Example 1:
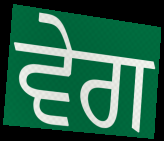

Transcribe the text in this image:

ਵੇਗ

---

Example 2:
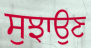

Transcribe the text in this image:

ਸੁਝਾਉਣ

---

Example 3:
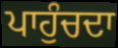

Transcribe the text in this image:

ਪਾਹੁੰਚਦਾ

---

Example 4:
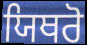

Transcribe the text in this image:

ਯਿਥਰੋ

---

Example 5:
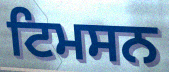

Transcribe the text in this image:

ਟਿਮਸਨ